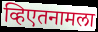
व्हिएतनामला